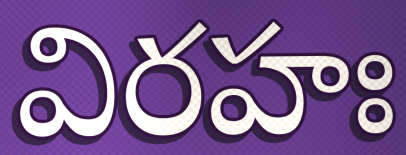
విరహః